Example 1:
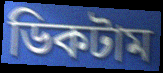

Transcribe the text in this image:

ডিকটাম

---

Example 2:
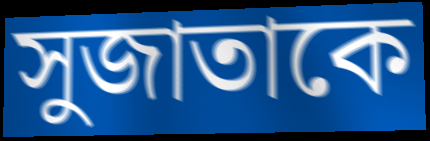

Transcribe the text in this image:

সুজাতাকে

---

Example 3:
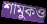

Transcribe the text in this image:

শামুকও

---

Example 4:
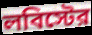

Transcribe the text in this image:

লবিস্টের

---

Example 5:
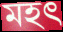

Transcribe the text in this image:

মহত্‍